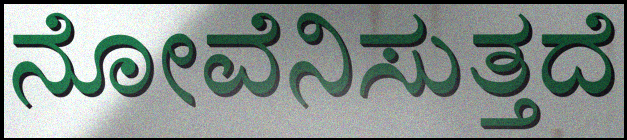
ನೋವೆನಿಸುತ್ತದೆ